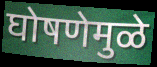
घोषणेमुळे